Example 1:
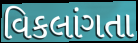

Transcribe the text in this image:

વિકલાંગતા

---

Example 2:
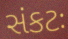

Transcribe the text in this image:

સંકટઃ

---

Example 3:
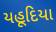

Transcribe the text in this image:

યહૂદિયા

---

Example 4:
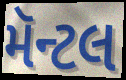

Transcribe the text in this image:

મૅન્ટલ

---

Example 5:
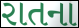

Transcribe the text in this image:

રાતના